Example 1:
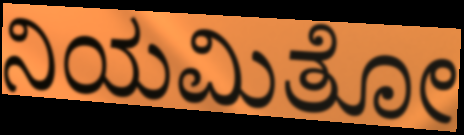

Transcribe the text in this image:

ನಿಯಮಿತೋ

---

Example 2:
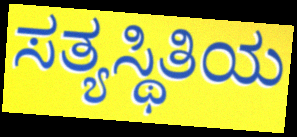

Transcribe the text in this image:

ಸತ್ಯಸ್ಥಿತಿಯ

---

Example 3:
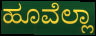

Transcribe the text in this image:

ಹೂವೆಲ್ಲಾ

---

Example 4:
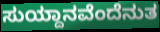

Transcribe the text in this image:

ಸುಯ್ದಾನವೆಂದೆನುತ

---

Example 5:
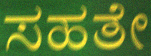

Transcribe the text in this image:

ಸಹತೇ